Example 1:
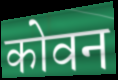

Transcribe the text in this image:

कोवन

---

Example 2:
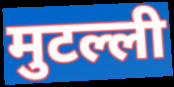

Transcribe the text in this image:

मुटल्ली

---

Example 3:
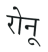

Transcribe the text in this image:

रोनू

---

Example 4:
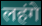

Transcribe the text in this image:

लहंगे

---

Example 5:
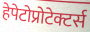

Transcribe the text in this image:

हेपेटोप्रोटेक्टर्स